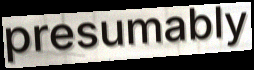
presumably